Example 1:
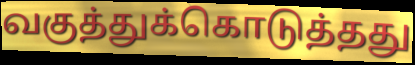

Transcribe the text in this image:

வகுத்துக்கொடுத்தது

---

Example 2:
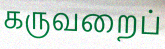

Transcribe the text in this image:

கருவறைப்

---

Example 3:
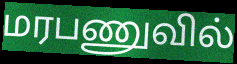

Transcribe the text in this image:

மரபணுவில்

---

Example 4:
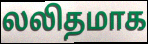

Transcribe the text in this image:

லலிதமாக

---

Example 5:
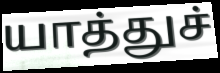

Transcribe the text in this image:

யாத்துச்